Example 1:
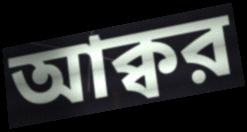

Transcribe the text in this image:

আক্বর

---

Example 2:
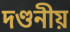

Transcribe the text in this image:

দণ্ডনীয়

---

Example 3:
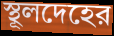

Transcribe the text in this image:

স্থূলদেহের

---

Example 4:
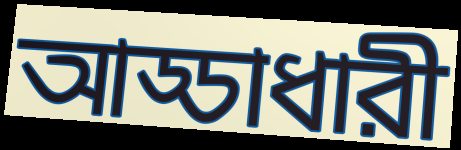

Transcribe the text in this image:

আড্ডাধারী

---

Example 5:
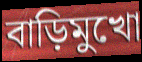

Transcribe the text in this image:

বাড়িমুখো